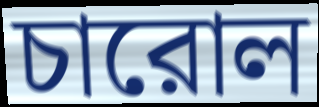
চারোল